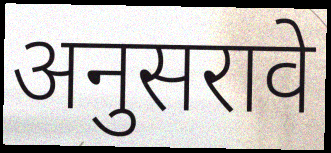
अनुसरावे